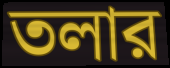
তলার